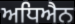
ਅਧਿਐਨ